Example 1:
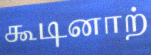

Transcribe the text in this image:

கூடினாற்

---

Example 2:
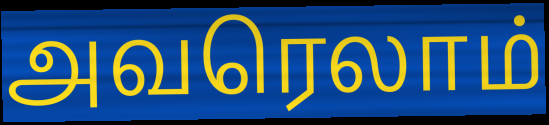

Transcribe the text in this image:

அவரெலாம்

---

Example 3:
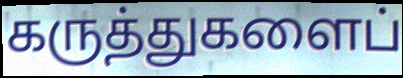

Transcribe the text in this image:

கருத்துகளைப்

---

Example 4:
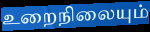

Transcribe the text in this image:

உறைநிலையும்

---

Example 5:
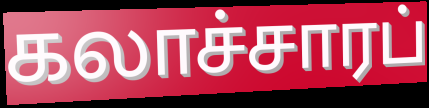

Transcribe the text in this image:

கலாச்சாரப்